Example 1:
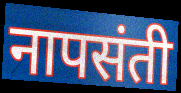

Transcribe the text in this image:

नापसंती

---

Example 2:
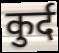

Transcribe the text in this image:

कुर्द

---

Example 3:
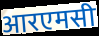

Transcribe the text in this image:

आरएमसी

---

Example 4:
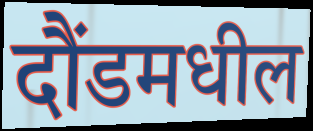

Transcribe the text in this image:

दौंडमधील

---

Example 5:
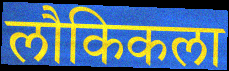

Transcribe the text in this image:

लौकिकला